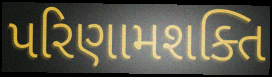
પરિણામશક્તિ